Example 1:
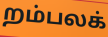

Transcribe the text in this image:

றம்பலக்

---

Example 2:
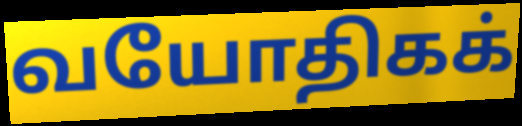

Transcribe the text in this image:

வயோதிகக்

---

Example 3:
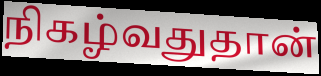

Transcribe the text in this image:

நிகழ்வதுதான்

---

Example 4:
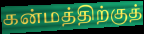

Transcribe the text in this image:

கன்மத்திற்குத்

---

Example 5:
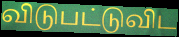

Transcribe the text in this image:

விடுபட்டுவிட